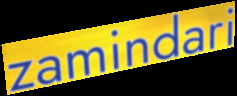
zamindari